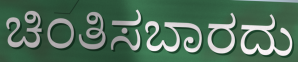
ಚಿಂತಿಸಬಾರದು